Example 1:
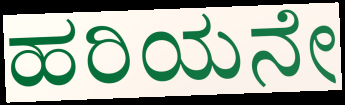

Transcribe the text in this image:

ಹರಿಯನೇ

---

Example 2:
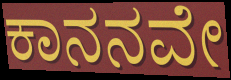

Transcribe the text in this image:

ಕಾನನವೇ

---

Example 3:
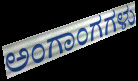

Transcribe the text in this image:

ಅಂಗಾಂಗಗಳು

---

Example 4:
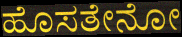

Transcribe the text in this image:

ಹೊಸತೇನೋ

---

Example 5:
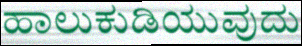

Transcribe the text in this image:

ಹಾಲುಕುಡಿಯುವುದು